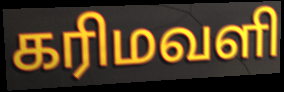
கரிமவளி